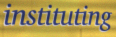
instituting